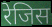
रेजिस